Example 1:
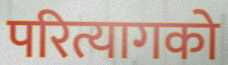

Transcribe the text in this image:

परित्यागको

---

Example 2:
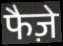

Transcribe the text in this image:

फैज़े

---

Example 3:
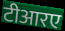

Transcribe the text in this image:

टीआरए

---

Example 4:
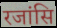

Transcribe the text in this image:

रजांसि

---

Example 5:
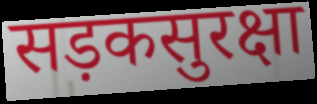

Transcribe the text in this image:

सड़कसुरक्षा